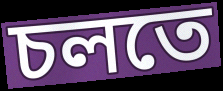
চলতে